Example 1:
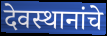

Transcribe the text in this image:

देवस्थानांचे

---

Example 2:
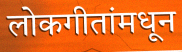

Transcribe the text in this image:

लोकगीतांमधून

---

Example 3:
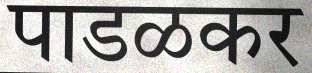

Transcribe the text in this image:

पाडळकर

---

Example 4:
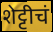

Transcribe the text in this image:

शेट्टीचं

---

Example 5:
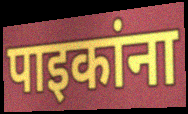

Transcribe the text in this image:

पाइकांना